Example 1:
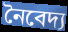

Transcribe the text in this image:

নৈবেদ্য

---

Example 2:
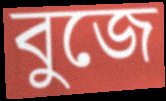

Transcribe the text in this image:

বুজে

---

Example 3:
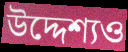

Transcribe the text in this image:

উদ্দেশ্যও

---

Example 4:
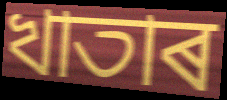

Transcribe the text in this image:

খাতাৰ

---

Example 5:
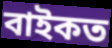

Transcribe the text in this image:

বাইকত